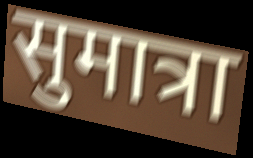
सुमात्रा